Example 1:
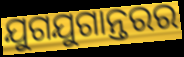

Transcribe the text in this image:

ଯୁଗଯୁଗାନ୍ତରର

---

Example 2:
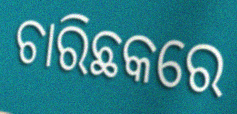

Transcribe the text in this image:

ଚାରିଛକରେ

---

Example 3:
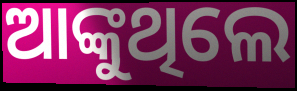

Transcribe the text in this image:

ଆଙ୍କୁଥିଲେ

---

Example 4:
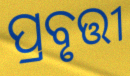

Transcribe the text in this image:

ପ୍ରବୃତ୍ତୀ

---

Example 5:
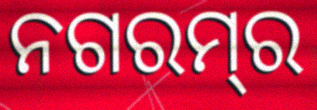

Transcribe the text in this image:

ନଗରମ୍‌ର